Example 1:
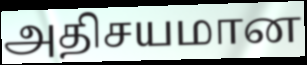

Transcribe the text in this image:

அதிசயமான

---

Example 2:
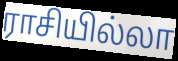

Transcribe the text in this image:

ராசியில்லா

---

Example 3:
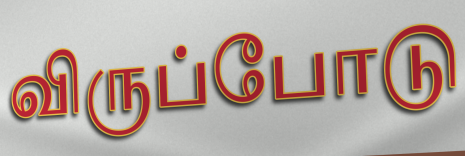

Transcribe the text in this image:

விருப்போடு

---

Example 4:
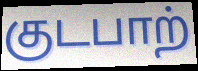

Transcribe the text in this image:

குடபாற்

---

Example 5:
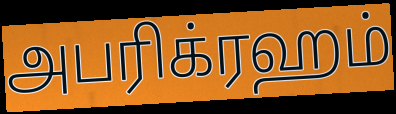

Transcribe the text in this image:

அபரிக்ரஹம்